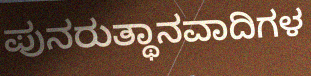
ಪುನರುತ್ಥಾನವಾದಿಗಳ